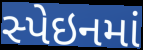
સ્પેઇનમાં